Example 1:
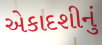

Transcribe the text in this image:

એકાદશીનું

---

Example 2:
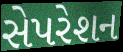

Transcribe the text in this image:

સેપરેશન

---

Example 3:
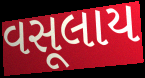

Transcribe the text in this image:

વસૂલાય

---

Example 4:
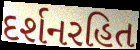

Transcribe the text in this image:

દર્શનરહિત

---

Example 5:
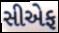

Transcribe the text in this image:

સીએફ